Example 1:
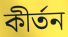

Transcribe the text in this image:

কীর্তন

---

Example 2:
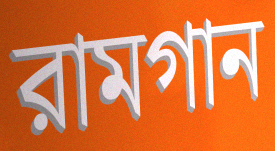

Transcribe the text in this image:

রামগান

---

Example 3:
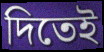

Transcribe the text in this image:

দিতেই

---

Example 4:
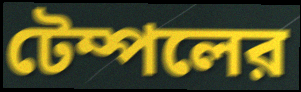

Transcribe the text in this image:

টেম্পলের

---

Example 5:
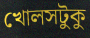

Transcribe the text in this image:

খোলসটুকু